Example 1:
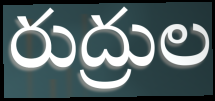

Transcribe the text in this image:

రుద్రుల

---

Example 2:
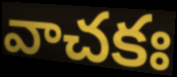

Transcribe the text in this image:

వాచకః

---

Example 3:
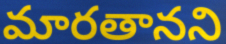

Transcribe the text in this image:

మారతానని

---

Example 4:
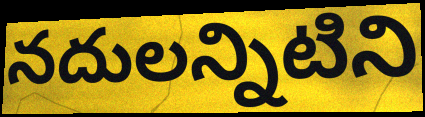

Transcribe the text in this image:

నదులన్నిటిని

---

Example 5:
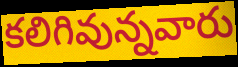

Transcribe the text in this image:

కలిగివున్నవారు